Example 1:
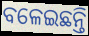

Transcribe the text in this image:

ବଳେଇଛନ୍ତି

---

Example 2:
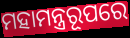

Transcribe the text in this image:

ମହାମନ୍ତ୍ରରୂପରେ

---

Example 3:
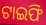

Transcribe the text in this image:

ଟାଇଫି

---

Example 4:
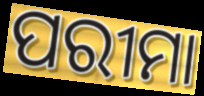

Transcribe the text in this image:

ପରୀମା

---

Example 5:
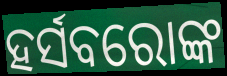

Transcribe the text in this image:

ହର୍ସବରୋଙ୍କ